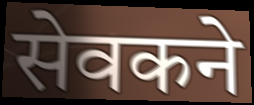
सेवकने